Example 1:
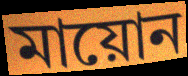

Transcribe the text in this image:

মায়োন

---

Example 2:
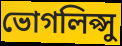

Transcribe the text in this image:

ভোগলিপ্সু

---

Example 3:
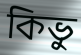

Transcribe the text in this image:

কিভু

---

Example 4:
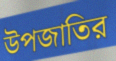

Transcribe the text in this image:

উপজাতির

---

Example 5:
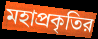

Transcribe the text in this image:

মহাপ্রকৃতির